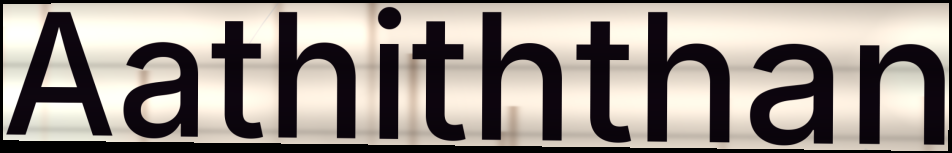
Aathiththan